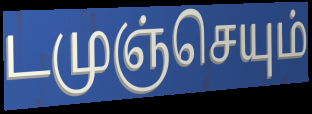
டமுஞ்செயும்